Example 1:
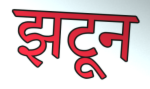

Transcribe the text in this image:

झटून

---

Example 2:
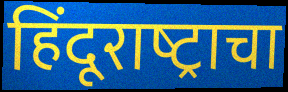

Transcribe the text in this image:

हिंदूराष्ट्राचा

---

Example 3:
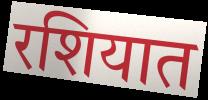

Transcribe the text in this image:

रशियात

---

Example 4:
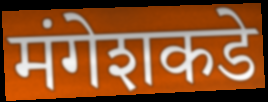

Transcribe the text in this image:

मंगेशकडे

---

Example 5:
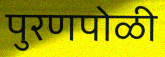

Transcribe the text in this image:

पुरणपोळी